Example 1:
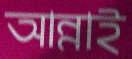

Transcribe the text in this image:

আন্নাই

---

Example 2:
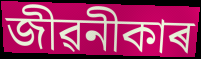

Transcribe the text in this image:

জীৱনীকাৰ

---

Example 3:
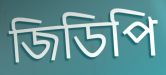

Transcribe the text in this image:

জিডিপি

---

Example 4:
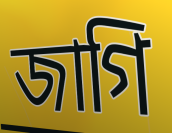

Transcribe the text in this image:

জাগি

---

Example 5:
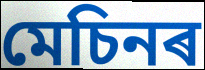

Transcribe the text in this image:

মেচিনৰ